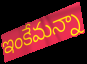
ఇంకేమన్నా